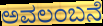
ಅವಲಂಬನೆ